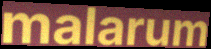
malarum